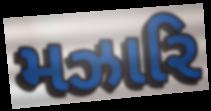
મઝારિ